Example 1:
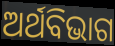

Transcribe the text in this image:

ଅର୍ଥବିଭାଗ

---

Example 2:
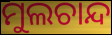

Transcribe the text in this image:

ମୁଲଚାନ୍ଦ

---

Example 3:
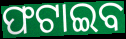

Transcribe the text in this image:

ଫଟାଇବ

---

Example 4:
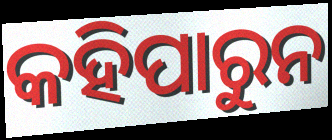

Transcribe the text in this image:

କହିପାରୁନ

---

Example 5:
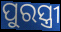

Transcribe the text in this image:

ପୁରସ୍ତ୍ରୀ